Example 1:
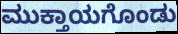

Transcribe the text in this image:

ಮುಕ್ತಾಯಗೊಂಡು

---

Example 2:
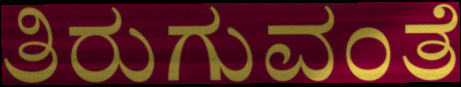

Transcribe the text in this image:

ತಿರುಗುವಂತೆ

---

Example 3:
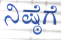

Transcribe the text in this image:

ನಿಷ್ಠೆಗೆ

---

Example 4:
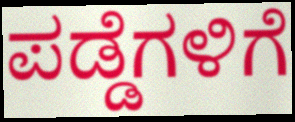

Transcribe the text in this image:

ಪಡ್ಡೆಗಳಿಗೆ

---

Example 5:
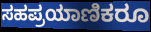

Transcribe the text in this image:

ಸಹಪ್ರಯಾಣಿಕರೂ